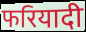
फरियादी